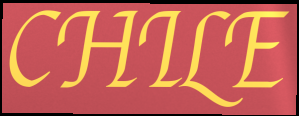
CHILE